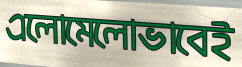
এলোমেলোভাবেই